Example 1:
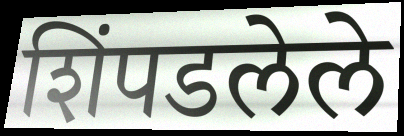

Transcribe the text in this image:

शिंपडलेले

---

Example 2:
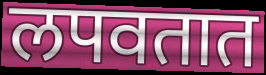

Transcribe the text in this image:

लपवतात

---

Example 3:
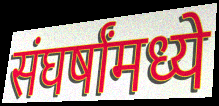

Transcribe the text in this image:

संघर्षांमध्ये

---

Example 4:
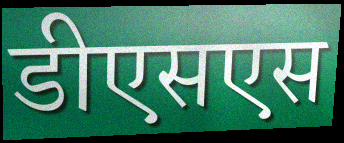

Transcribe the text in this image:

डीएसएस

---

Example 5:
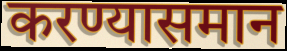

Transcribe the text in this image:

करण्यासमान